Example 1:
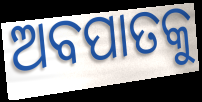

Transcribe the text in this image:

ଅବପାତକୁ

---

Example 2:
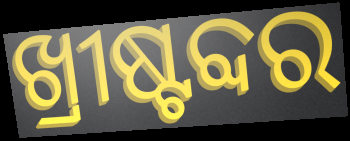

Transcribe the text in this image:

ଖ୍ରୀଷ୍ଟବ୍ଦର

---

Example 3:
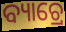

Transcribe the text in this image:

ବ୍ୟାଚ୍ରେ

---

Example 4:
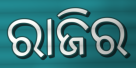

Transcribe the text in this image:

ରାଜିର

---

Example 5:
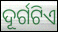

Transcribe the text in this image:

ଦୂର୍ଗଟିଏ